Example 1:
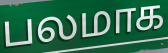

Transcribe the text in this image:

பலமாக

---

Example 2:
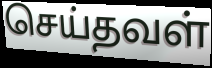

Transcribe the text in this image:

செய்தவள்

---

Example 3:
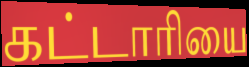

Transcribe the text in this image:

கட்டாரியை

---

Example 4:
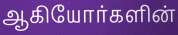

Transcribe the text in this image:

ஆகியோர்களின்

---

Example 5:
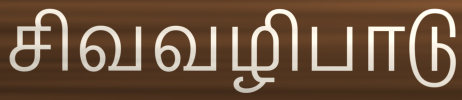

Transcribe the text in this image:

சிவவழிபாடு